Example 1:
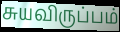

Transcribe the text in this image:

சுயவிருப்பம்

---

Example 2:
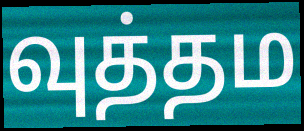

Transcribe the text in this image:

வுத்தம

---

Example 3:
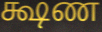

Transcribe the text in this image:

க்ஷண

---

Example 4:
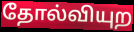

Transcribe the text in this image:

தோல்வியுற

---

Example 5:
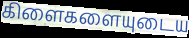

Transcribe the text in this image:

கிளைகளையுடைய